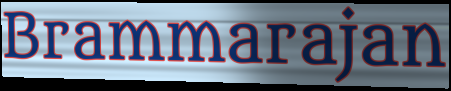
Brammarajan